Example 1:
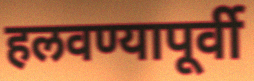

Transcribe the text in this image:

हलवण्यापूर्वी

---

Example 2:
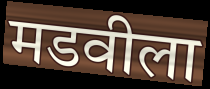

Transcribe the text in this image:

मडवीला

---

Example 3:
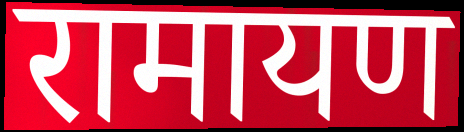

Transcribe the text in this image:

रामायण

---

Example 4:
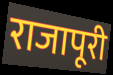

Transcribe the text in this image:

राजापूरी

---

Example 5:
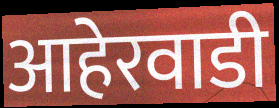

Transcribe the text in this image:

आहेरवाडी